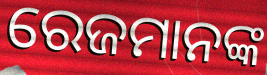
ରେଜମାନଙ୍କ